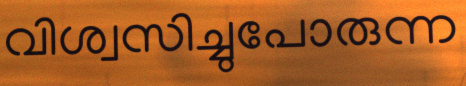
വിശ്വസിച്ചുപോരുന്ന